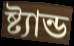
ষ্ট্যান্ড